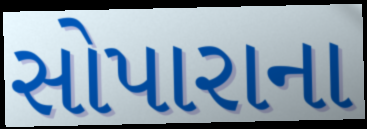
સોપારાના